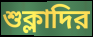
শুক্লাদির